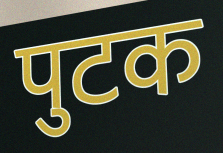
पुटक